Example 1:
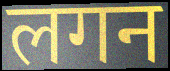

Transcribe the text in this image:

लगन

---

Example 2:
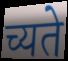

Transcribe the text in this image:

च्यते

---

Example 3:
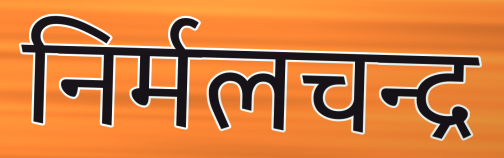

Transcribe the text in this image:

निर्मलचन्द्र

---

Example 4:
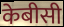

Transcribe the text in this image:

केबीसी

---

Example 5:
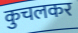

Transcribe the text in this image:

कुचलकर